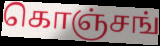
கொஞ்சங்